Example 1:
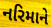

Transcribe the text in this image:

નરિમાને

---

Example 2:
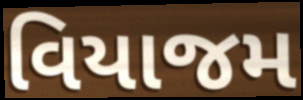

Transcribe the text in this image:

વિયાજમ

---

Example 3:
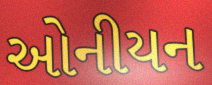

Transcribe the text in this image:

ઓનીયન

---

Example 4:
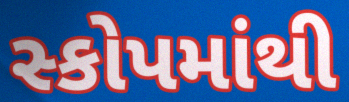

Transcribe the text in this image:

સ્કોપમાંથી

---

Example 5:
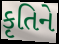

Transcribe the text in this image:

કૃતિને